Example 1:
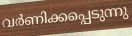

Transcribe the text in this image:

വർണിക്കപ്പെടുന്നു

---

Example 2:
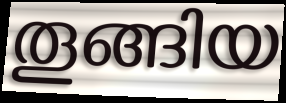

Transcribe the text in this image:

തൂങ്ങിയ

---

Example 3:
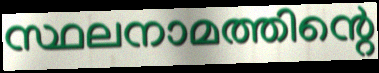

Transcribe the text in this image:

സ്ഥലനാമത്തിന്റെ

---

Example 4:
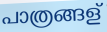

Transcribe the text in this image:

പാത്രങ്ങള്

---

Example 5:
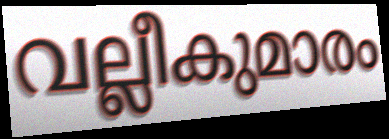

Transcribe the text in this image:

വല്ലീകുമാരം